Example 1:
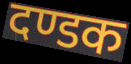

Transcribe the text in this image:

दण्डक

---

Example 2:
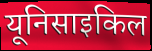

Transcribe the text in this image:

यूनिसाइकिल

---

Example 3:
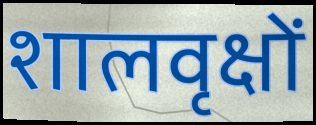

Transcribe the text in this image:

शालवृक्षों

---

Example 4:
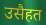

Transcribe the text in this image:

उसैहत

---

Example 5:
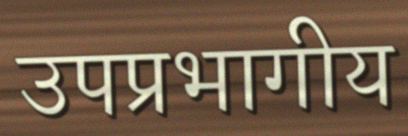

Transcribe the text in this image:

उपप्रभागीय